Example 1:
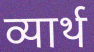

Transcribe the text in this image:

व्यार्थ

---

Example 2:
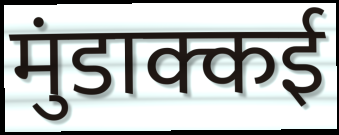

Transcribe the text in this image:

मुंडाक्कई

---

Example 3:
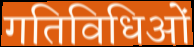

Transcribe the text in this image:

गतिविधिओं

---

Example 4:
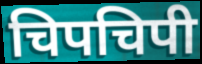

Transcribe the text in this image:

चिपचिपी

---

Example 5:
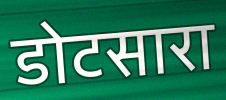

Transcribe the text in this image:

डोटसारा